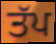
ਤੱਪ